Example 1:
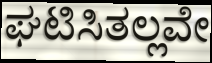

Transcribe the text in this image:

ಘಟಿಸಿತಲ್ಲವೇ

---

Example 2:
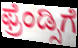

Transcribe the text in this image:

ಫ್ರೆಂಡ್ಸಿಗೆ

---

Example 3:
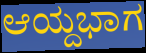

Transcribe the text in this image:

ಆಯ್ದಭಾಗ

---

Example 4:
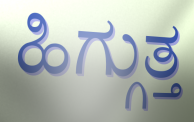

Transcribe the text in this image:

ಹಿಗ್ಗುತ್ತ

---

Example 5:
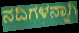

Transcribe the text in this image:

ನದಿಗಳನ್ನಾಗಿ